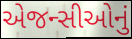
એજન્સીઓનું